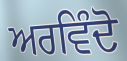
ਅਰਵਿੰਦੋ